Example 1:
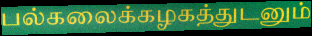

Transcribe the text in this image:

பல்கலைக்கழகத்துடனும்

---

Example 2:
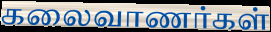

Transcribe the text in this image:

கலைவாணர்கள்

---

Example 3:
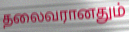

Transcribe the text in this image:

தலைவரானதும்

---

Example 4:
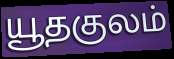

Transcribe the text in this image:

யூதகுலம்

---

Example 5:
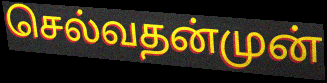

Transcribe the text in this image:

செல்வதன்முன்